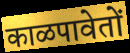
काळपावेतों